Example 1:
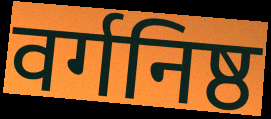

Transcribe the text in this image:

वर्गनिष्ठ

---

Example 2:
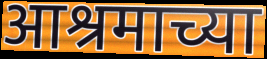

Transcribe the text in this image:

आश्रमाच्या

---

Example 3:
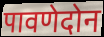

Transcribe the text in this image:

पावणेदोन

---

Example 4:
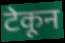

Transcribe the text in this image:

टेकून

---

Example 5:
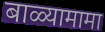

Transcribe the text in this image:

बाळ्यामामा